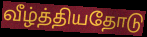
வீழ்த்தியதோடு